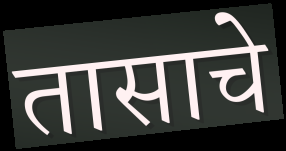
तासाचे